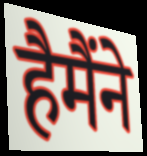
हैमैंने